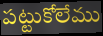
పట్టుకోలేము